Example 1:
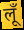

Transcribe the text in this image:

लूँ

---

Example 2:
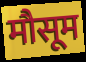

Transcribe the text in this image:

मौसूम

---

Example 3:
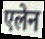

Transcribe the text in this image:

एलेन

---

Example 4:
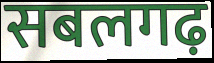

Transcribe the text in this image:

सबलगढ़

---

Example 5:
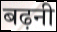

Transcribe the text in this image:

बढ़नी